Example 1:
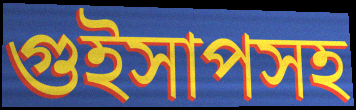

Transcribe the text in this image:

গুইসাপসহ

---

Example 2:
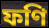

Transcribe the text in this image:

ফণি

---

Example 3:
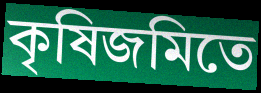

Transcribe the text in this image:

কৃষিজমিতে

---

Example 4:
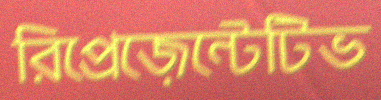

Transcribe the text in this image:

রিপ্রেজ়েন্টেটিভ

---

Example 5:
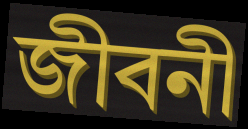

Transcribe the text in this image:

জীবনী